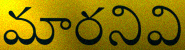
మారనివి